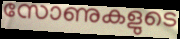
സോണുകളുടെ